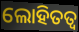
ଲୋହିତତ୍ଵ